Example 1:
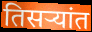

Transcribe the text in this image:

तिसर्‍यांत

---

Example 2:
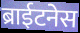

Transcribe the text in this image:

ब्राईटनेस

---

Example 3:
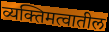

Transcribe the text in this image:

व्यक्तिमत्वातील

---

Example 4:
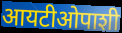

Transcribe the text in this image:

आयटीओपाशी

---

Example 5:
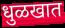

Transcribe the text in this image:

धुळखात